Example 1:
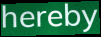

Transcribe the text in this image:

hereby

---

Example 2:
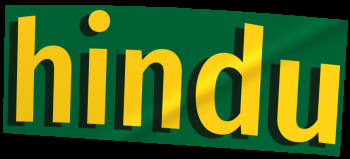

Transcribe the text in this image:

hindu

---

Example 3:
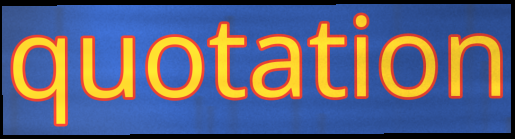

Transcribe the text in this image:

quotation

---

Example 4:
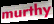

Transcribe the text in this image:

murthy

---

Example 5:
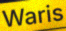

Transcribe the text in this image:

Waris